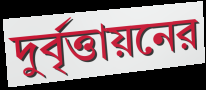
দুর্বৃত্তায়নের